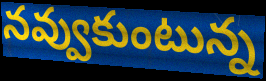
నవ్వుకుంటున్న